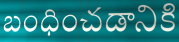
బంధించడానికి